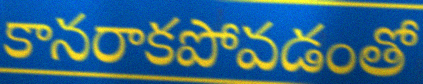
కానరాకపోవడంతో